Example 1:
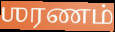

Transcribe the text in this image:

ஶரணம்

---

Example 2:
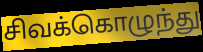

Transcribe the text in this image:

சிவக்கொழுந்து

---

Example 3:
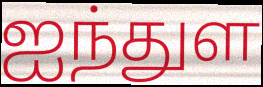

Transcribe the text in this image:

ஐந்துள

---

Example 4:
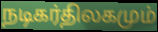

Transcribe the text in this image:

நடிகர்திலகமும்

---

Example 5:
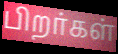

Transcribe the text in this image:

பிறர்கள்